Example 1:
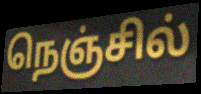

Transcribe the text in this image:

நெஞ்சில்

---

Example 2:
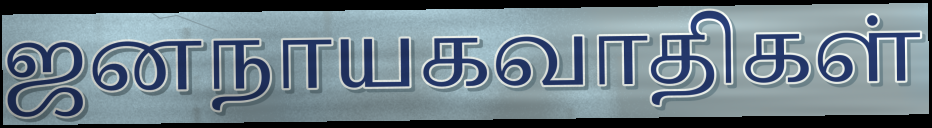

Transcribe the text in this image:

ஜனநாயகவாதிகள்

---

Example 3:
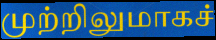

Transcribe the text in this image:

முற்றிலுமாகச்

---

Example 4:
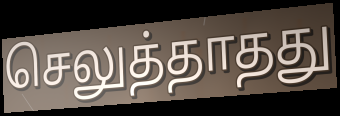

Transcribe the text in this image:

செலுத்தாதது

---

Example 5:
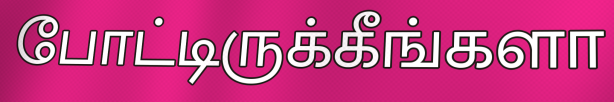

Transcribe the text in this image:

போட்டிருக்கீங்களா